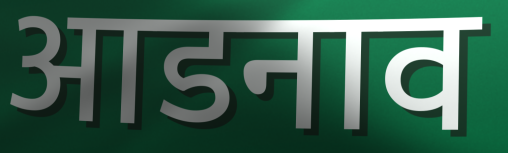
आडनाव